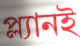
প্ল্যানই